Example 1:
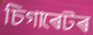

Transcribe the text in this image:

চিগাৰেটৰ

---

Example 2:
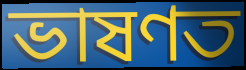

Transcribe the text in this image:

ভাষণত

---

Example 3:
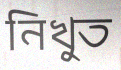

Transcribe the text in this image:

নিখুত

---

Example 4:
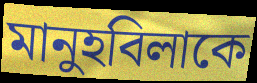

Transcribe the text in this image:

মানুহবিলাকে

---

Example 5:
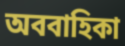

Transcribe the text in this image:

অববাহিকা